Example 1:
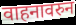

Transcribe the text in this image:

वाहनावरुन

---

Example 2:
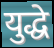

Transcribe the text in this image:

युद्धे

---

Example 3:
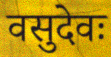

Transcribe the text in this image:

वसुदेवः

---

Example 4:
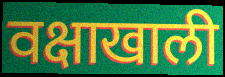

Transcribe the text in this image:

वक्षाखाली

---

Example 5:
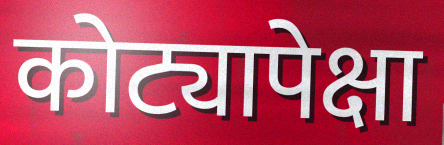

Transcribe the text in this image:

कोट्यापेक्षा